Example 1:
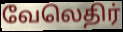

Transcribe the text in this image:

வேலெதிர்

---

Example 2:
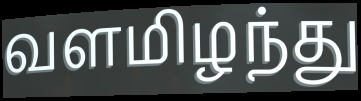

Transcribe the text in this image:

வளமிழந்து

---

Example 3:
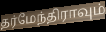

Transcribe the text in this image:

தர்மேந்திராவும்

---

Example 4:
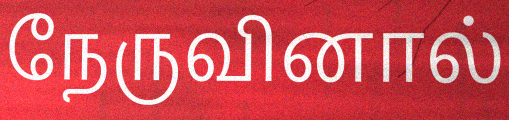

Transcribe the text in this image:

நேருவினால்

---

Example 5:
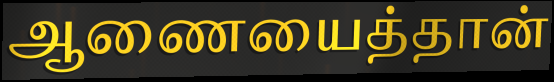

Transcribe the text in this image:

ஆணையைத்தான்